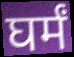
घर्मं